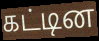
கட்டின